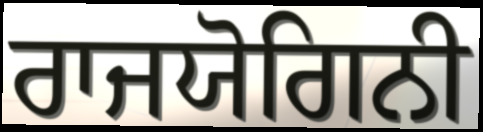
ਰਾਜਯੋਗਿਨੀ